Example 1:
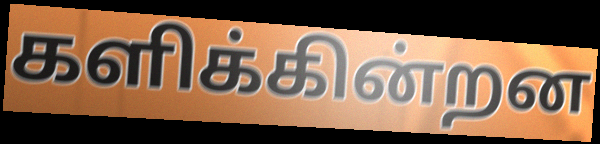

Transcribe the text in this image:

களிக்கின்றன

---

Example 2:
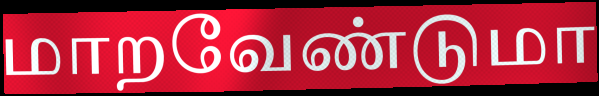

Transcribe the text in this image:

மாறவேண்டுமா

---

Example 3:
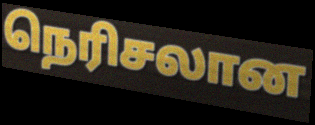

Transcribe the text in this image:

நெரிசலான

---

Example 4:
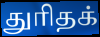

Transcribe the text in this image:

துரிதக்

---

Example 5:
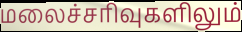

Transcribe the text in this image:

மலைச்சரிவுகளிலும்